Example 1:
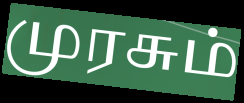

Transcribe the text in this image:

முரசும்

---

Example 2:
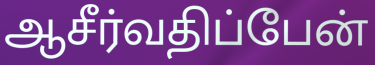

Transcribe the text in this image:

ஆசீர்வதிப்பேன்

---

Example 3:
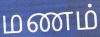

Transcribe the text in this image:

மணம்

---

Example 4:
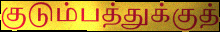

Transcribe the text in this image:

குடும்பத்துக்குத்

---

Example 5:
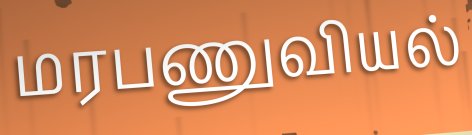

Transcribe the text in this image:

மரபணுவியல்